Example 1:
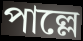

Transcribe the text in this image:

পাল্লে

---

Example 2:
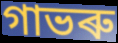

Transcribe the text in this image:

গাভৰু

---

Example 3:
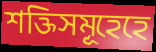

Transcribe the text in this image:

শক্তিসমূহেহে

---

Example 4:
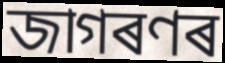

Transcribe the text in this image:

জাগৰণৰ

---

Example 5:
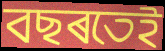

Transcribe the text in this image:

বছৰতেই